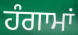
ਹੰਗਾਮਾਂ